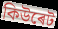
কিউৰেট